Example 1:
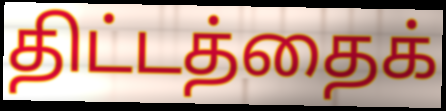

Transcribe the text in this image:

திட்டத்தைக்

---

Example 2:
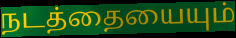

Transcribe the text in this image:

நடத்தையையும்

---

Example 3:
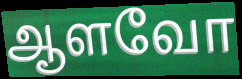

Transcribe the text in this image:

ஆளவோ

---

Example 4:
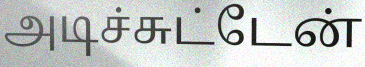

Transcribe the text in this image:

அடிச்சுட்டேன்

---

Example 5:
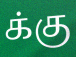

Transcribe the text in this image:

க்கு